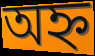
অহ্ন